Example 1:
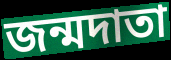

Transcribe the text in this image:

জন্মদাতা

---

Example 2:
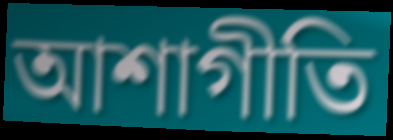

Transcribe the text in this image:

আশাগীতি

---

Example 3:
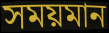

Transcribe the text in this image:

সময়মান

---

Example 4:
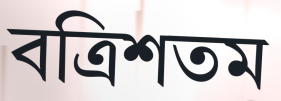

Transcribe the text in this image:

বত্রিশতম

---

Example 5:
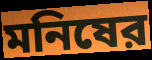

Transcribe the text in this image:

মনিষের